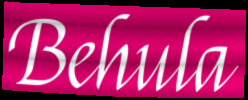
Behula